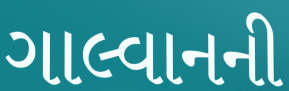
ગાલ્વાનની